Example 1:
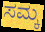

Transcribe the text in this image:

ಸಮ್ಕ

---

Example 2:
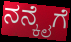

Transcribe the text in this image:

ನನ್ಕೈಗೆ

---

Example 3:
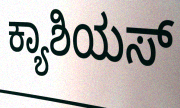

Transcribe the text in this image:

ಕ್ಯಾಶಿಯಸ್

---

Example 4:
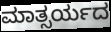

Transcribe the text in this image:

ಮಾತ್ಸರ್ಯದ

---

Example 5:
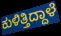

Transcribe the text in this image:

ಕುಳಿತ್ತಿದ್ದಾಳೆ